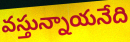
వస్తున్నాయనేది